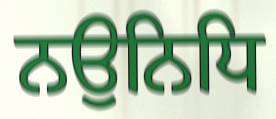
ਨਉਨਿਧਿ